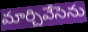
మార్చివేసెను